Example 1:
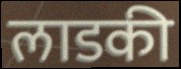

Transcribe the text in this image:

लाडकी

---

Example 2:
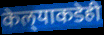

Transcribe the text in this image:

केल्याकडेही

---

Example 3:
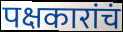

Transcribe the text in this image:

पक्षकारांचं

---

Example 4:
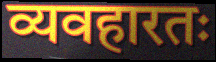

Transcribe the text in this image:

व्यवहारतः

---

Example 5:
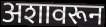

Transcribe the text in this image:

अशावरून